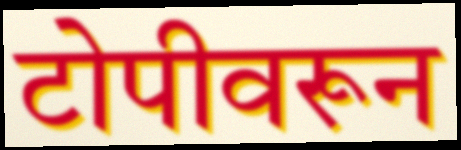
टोपीवरून